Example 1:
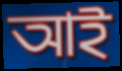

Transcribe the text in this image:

আই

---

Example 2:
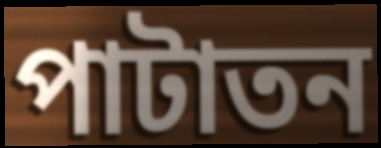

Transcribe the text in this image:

পাটাতন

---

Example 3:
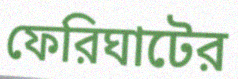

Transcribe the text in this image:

ফেরিঘাটের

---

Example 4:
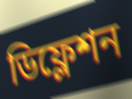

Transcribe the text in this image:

ডিফ্লেশন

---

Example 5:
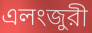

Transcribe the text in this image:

এলংজুরী